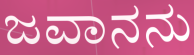
ಜವಾನನು